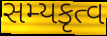
સમ્યકૃત્વ